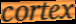
cortex